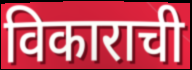
विकाराची